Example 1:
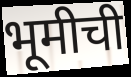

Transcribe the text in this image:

भूमीची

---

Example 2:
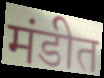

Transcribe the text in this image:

मंडीत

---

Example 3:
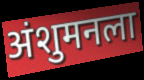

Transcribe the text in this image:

अंशुमनला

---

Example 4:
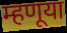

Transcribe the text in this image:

म्हणूया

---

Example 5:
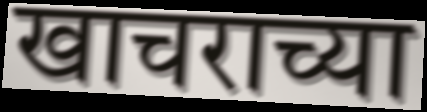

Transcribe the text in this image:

खाचराच्या